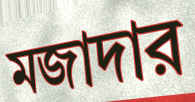
মজাদার